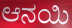
ಆನಯಿ